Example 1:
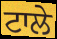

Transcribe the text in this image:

ਟਾਲੇ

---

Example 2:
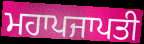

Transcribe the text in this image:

ਮਹਾਪਜਾਪਤੀ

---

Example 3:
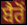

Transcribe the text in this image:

ਬੈਰੋਂ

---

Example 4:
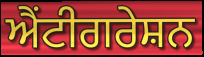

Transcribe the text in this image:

ਐਂਟੀਗਰੇਸ਼ਨ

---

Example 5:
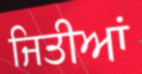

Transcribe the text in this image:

ਜਿਤੀਆਂ